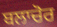
ਬਲਾਚੋਰ